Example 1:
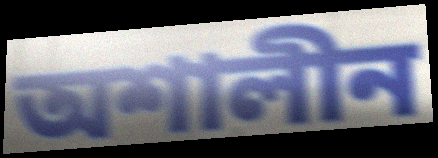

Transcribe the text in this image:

অশালীন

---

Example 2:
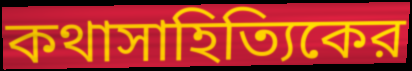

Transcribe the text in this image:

কথাসাহিত্যিকের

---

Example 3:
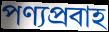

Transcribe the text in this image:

পণ্যপ্রবাহ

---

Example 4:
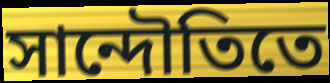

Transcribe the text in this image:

সান্দৌতিতে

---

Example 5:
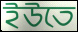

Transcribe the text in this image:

ইউতে